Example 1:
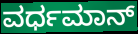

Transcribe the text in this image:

ವರ್ಧಮಾನ್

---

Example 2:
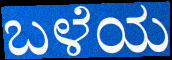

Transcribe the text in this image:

ಬಳೆಯ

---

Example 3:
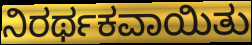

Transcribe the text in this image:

ನಿರರ್ಥಕವಾಯಿತು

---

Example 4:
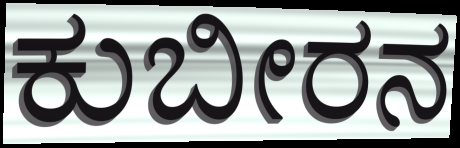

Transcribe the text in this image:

ಕುಬೀರನ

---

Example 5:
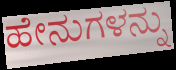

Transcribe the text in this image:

ಹೇನುಗಳನ್ನು